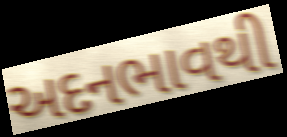
અદનભાવથી